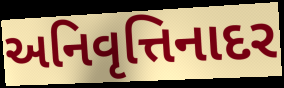
અનિવૃત્તિનાદર